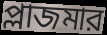
প্লাজমার